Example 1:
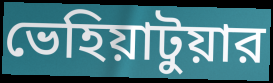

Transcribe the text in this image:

ভেহিয়াটুয়ার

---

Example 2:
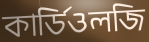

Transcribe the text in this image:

কার্ডিওলজি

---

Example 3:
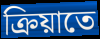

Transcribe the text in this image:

ক্রিয়াতে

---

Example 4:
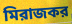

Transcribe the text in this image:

মিরাজকর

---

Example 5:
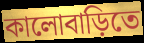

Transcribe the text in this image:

কালোবাড়িতে